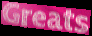
Greats